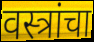
वस्त्रांचा